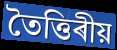
তৈত্তিৰীয়